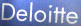
Deloitte